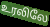
உரலிலே